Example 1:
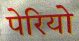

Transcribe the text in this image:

पेरियो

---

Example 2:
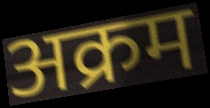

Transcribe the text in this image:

अक्रम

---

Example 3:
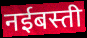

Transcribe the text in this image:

नईबस्ती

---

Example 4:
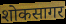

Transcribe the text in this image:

शोकसागर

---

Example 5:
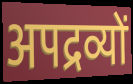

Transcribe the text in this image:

अपद्रव्यों